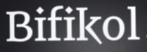
Bifikol